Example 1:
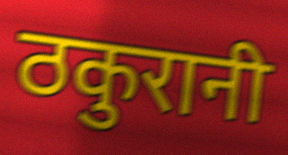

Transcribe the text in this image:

ठकुरानी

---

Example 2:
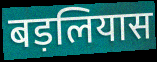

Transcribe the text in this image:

बड़लियास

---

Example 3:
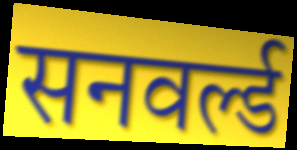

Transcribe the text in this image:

सनवर्ल्ड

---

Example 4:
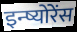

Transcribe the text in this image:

इन्ष्योरेंस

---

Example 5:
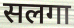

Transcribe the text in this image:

सलगा